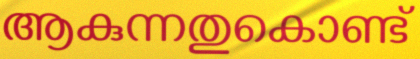
ആകുന്നതുകൊണ്ട്